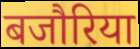
बजौरिया